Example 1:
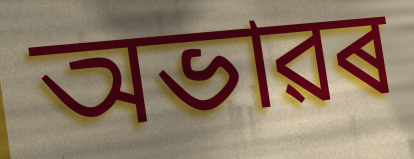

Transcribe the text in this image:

অভাৱৰ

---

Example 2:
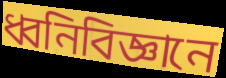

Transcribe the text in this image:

ধ্বনিবিজ্ঞানে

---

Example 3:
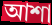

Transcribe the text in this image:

আশা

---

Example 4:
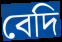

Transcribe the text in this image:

বেদি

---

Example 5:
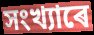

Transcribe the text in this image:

সংখ্যাৰে